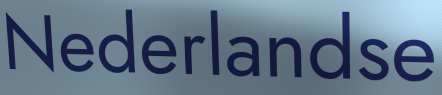
Nederlandse